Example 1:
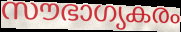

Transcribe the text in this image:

സൗഭാഗ്യകരം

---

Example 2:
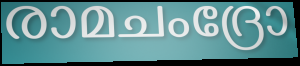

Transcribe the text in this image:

രാമചംദ്രോ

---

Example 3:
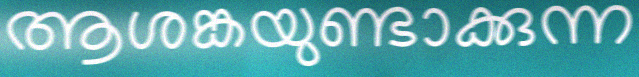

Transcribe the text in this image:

ആശങ്കയുണ്ടാക്കുന്ന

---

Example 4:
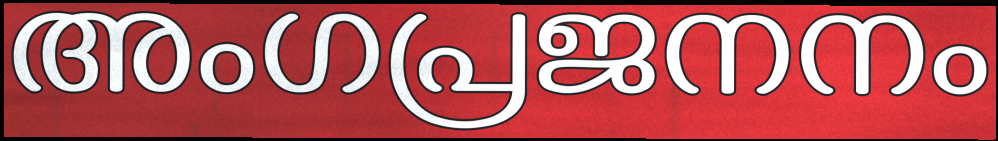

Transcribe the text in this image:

അംഗപ്രജനനം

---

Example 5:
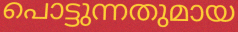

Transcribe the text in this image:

പൊട്ടുന്നതുമായ